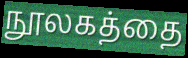
நூலகத்தை